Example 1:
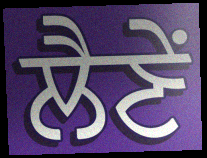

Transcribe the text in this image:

ਲੈਣੇਂ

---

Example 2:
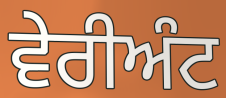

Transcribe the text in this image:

ਵੇਰੀਅੰਟ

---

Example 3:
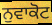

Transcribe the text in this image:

ਨੁਵਾਕੋਟ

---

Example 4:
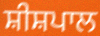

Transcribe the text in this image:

ਸ਼ੀਸ਼ਪਾਲ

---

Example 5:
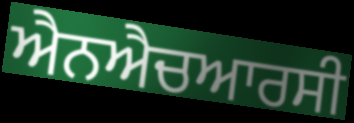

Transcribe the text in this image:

ਐਨਐਚਆਰਸੀ